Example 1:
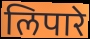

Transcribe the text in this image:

लिपारे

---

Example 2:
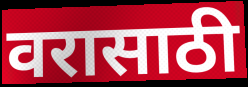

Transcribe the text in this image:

वरासाठी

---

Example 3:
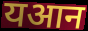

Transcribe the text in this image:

यआन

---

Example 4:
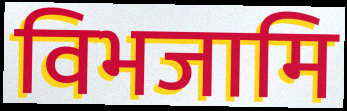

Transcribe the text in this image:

विभजामि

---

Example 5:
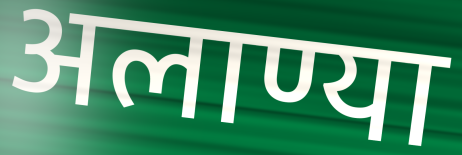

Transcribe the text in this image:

अलाण्या